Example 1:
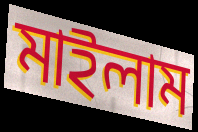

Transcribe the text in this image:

মাইলাম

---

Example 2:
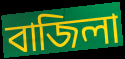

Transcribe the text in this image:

বাজিলা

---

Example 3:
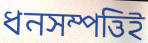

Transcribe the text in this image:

ধনসম্পত্তিই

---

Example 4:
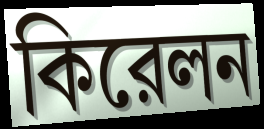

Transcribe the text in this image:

কিরেলন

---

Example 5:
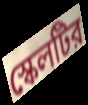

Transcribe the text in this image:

স্কেলটির